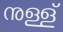
നുള്ള്